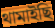
থামাইছি